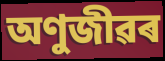
অণুজীৱৰ